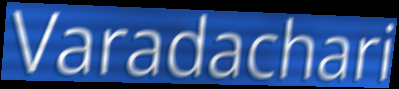
Varadachari